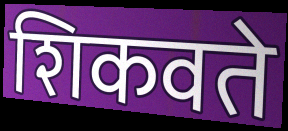
शिकवते